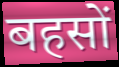
बहसों